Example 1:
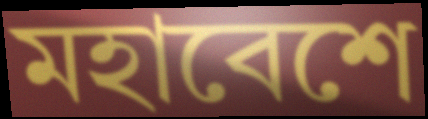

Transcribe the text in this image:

মহাবেশে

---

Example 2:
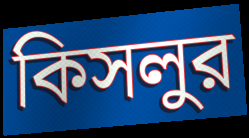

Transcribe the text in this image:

কিসলুর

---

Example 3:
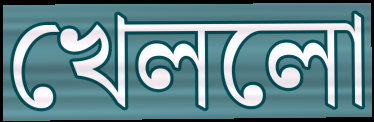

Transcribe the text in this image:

খেললো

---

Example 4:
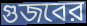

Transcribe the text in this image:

গুজবের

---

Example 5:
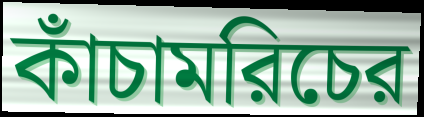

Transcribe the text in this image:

কাঁচামরিচের